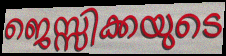
ജെസ്സിക്കയുടെ